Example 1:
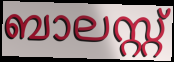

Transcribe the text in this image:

ബാലസ്റ്റ്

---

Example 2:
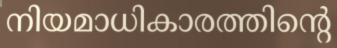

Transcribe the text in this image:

നിയമാധികാരത്തിന്റെ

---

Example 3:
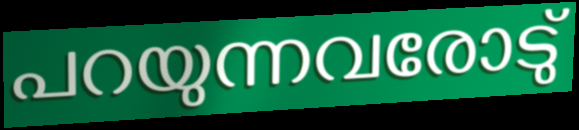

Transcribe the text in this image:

പറയുന്നവരോടു്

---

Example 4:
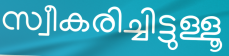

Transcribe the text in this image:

സ്വീകരിച്ചിട്ടുള്ളൂ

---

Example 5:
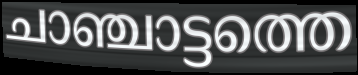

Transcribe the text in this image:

ചാഞ്ചാട്ടത്തെ